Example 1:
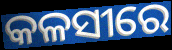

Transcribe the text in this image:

କଳସୀରେ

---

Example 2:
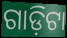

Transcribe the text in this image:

ଗାଡ଼ିଟା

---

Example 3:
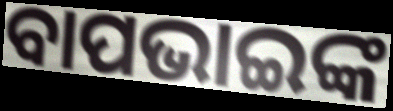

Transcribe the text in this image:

ବାପଭାଇଙ୍କ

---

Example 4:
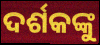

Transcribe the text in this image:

ଦର୍ଶକଙ୍କୁ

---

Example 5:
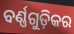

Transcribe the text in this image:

ବର୍ଣ୍ଣଗୁଡ଼ିକର